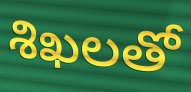
శిఖలతో